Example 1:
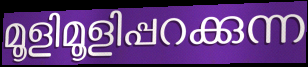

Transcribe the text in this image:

മൂളിമൂളിപ്പറക്കുന്ന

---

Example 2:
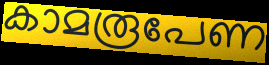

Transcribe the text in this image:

കാമരൂപേണ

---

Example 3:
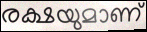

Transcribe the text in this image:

രക്ഷയുമാണ്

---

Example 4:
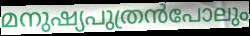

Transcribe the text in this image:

മനുഷ്യപുത്രൻപോലും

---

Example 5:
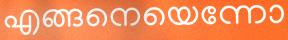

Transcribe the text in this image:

എങ്ങനെയെന്നോ